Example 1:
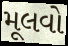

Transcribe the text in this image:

મૂલવો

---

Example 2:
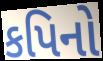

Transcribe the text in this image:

કપિનો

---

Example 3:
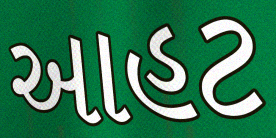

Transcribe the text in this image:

આહટ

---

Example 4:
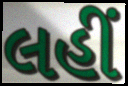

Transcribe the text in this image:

લહીં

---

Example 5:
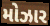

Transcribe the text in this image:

મોઝાર